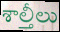
శాల్తీలు